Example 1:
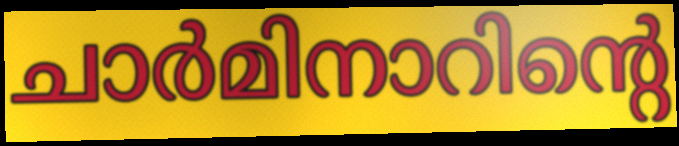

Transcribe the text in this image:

ചാർമിനാറിന്റെ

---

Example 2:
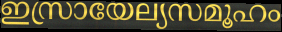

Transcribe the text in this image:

ഇസ്രായേല്യസമൂഹം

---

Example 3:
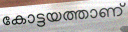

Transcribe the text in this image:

കോട്ടയത്താണ്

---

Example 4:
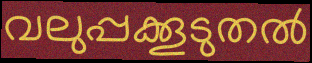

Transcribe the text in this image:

വലുപ്പക്കൂടുതൽ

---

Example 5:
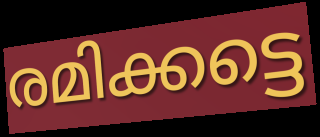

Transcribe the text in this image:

രമിക്കട്ടെ